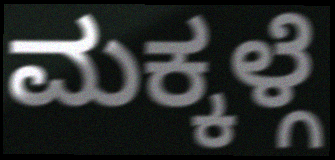
ಮಕ್ಕಳ್ಗೆ